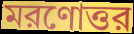
মরণোত্তর